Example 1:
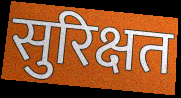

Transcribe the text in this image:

सुरिक्षत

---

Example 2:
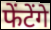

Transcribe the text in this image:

फेंटेंगे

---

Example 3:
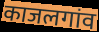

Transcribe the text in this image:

काजलगांव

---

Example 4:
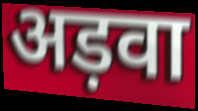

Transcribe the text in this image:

अड़वा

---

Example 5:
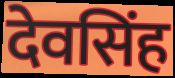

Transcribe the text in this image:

देवसिंह